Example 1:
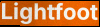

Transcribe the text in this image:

Lightfoot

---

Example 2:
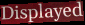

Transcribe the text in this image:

Displayed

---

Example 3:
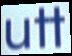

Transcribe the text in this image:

utt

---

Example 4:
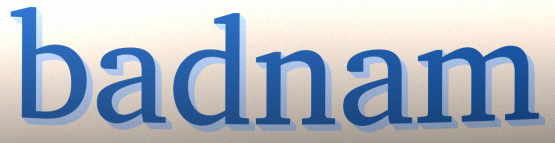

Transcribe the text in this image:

badnam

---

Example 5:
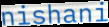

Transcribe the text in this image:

nishani